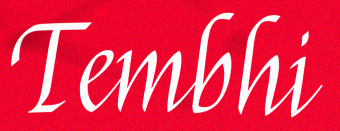
Tembhi